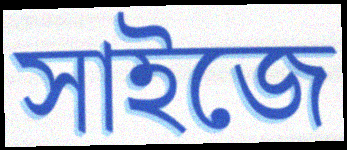
সাইজে